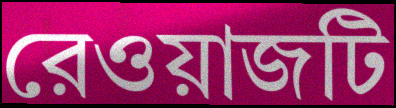
রেওয়াজটি